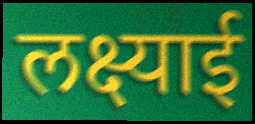
लक्ष्याई